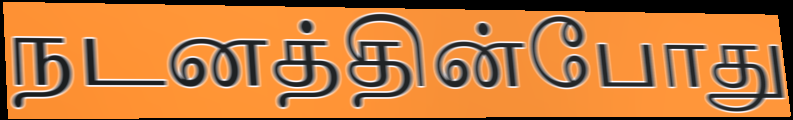
நடனத்தின்போது